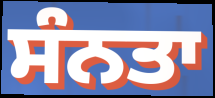
ਸੰਨਤਾ